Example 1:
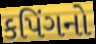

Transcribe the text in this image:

કપિંગનો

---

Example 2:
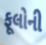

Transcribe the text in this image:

ફૂલોની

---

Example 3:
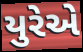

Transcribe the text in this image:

યુરેએ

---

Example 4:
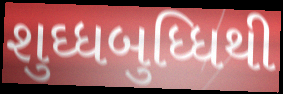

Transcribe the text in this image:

શુઘ્ધબુધ્ધિથી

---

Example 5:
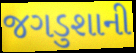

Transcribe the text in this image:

જગડુશાની